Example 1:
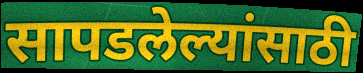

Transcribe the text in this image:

सापडलेल्यांसाठी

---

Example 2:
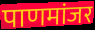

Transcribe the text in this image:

पाणमांजर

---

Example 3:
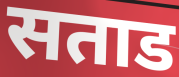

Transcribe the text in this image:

सताड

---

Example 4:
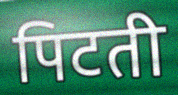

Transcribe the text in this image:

पिटती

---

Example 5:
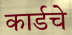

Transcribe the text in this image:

कार्डचे